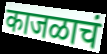
काजळाचं